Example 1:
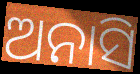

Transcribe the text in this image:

ଅନାସି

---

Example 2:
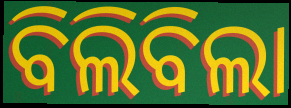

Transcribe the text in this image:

ବିଲିବିଲା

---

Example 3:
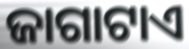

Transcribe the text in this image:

ଜାଗାଟାଏ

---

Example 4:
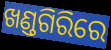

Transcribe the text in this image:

ଖଣ୍ଡଗିରିରେ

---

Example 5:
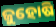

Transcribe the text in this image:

ଜୁହୋଷି